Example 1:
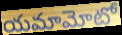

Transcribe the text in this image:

యమామోటో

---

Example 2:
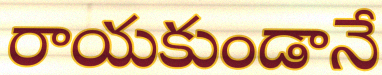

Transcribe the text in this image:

రాయకుండానే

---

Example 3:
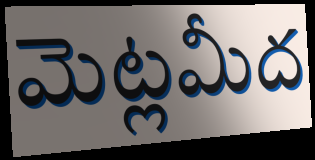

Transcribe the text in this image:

మెట్లమీద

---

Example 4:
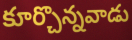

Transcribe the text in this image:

కూర్చొన్నవాడు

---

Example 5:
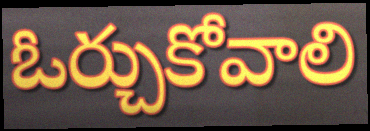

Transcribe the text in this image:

ఓర్చుకోవాలి